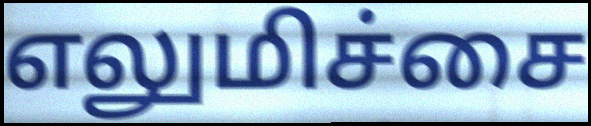
எலுமிச்சை